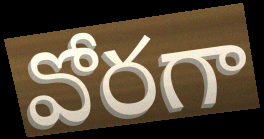
వోరగా